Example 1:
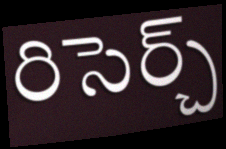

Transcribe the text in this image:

రిసెర్చ్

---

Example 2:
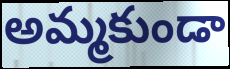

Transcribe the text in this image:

అమ్మకుండా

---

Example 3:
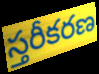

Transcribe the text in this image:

స్తరీకరణ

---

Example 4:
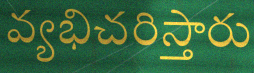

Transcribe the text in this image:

వ్యభిచరిస్తారు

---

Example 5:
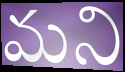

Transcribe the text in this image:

మని